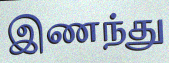
இணந்து